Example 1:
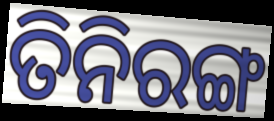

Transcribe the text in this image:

ତିନିରଙ୍ଗ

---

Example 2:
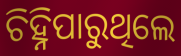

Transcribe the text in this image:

ଚିହ୍ନିପାରୁଥିଲେ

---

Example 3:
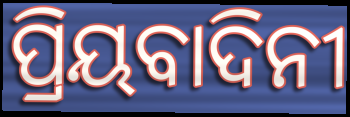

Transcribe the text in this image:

ପ୍ରିୟବାଦିନୀ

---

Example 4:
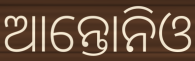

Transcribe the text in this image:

ଆନ୍ତୋନିଓ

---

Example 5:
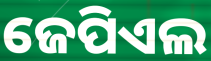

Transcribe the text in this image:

ଜେପିଏଲ